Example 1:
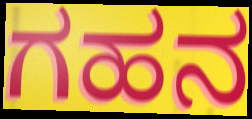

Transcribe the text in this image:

ಗಹನ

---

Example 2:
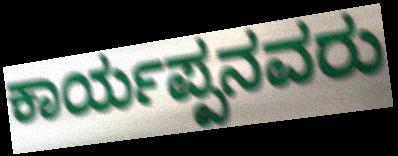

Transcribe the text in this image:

ಕಾರ್ಯಪ್ಪನವರು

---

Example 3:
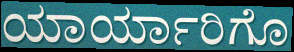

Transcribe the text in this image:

ಯಾರ್ಯಾರಿಗೊ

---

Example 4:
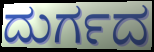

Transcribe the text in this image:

ದುರ್ಗದ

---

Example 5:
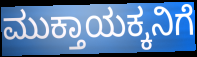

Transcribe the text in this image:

ಮುಕ್ತಾಯಕ್ಕನಿಗೆ